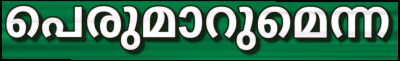
പെരുമാറുമെന്ന